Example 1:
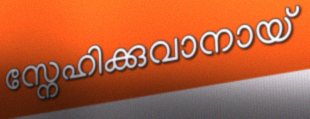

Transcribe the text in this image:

സ്നേഹിക്കുവാനായ്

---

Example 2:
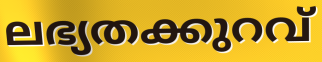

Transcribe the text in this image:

ലഭ്യതക്കുറവ്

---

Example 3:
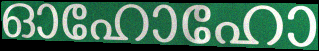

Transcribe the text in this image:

ഓഹോഹോ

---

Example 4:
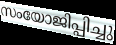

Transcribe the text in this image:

സംയോജിപ്പിച്ചു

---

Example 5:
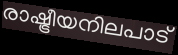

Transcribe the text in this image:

രാഷ്ട്രീയനിലപാട്